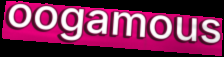
oogamous